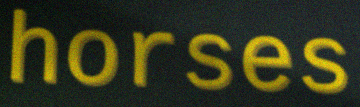
horses